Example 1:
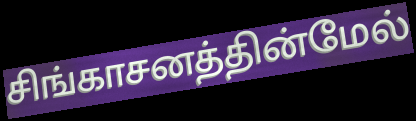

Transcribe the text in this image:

சிங்காசனத்தின்மேல்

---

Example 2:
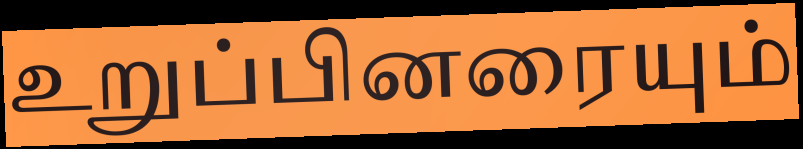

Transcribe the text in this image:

உறுப்பினரையும்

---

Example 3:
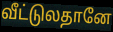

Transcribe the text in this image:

வீட்டுலதானே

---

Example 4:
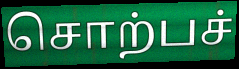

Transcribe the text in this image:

சொற்பச்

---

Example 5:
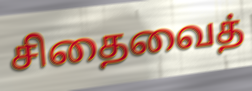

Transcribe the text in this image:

சிதைவைத்